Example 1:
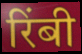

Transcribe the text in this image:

रिंबी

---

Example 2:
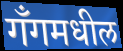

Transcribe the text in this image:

गँगमधील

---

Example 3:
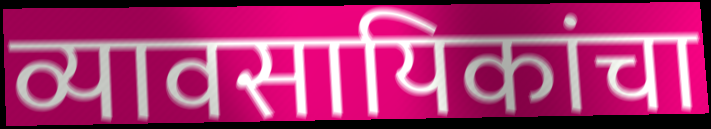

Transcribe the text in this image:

व्यावसायिकांचा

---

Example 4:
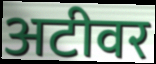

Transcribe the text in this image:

अटीवर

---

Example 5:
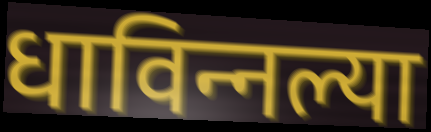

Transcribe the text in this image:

धाविन्नल्या